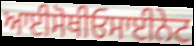
ਆਈਸੋਥੀਓਸਾਈਨੇਟ